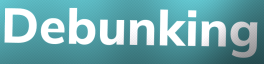
Debunking